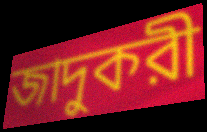
জাদুকরী